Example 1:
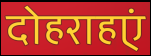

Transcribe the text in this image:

दोहराहएं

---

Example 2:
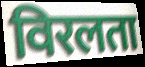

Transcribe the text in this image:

विरलता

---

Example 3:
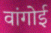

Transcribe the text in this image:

वांगोई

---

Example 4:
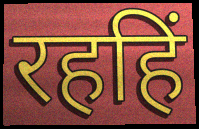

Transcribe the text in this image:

रहहिं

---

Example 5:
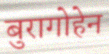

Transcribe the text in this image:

बुरागोहेन